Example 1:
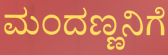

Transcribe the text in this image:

ಮಂದಣ್ಣನಿಗೆ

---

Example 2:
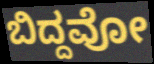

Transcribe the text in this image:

ಬಿದ್ದವೋ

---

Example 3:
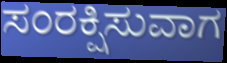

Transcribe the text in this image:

ಸಂರಕ್ಷಿಸುವಾಗ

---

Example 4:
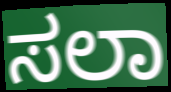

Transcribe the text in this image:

ಸಲಾ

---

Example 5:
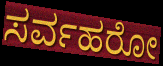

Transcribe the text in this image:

ಸರ್ವಹರೋ